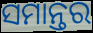
ସମାନ୍ତର